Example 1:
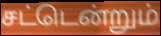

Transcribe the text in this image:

சட்டென்றும்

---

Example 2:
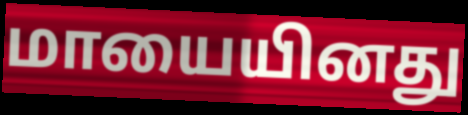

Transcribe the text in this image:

மாயையினது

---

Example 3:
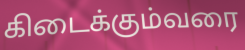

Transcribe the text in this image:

கிடைக்கும்வரை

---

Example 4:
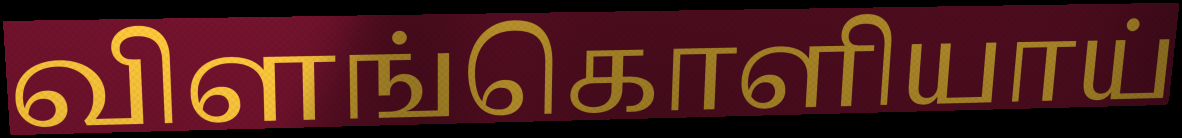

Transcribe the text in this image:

விளங்கொளியாய்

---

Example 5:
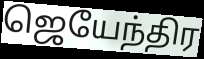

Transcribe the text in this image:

ஜெயேந்திர